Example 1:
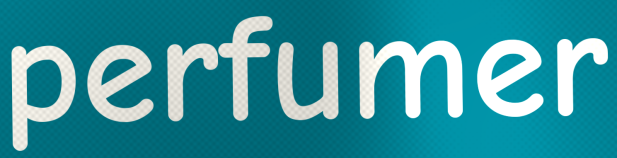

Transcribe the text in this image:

perfumer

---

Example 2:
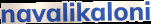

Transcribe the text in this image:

navalikaloni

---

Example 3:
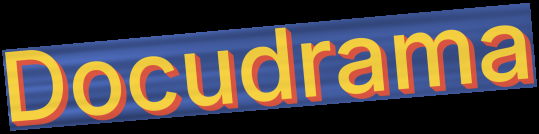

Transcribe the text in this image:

Docudrama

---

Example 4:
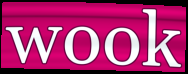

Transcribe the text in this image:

wook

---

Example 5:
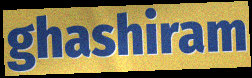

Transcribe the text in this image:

ghashiram